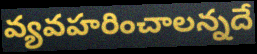
వ్యవహరించాలన్నదే